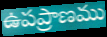
ఉపప్రాణము